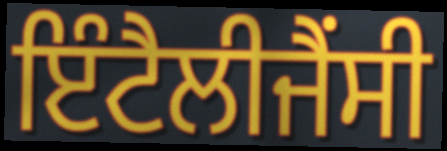
ਇੰਟੈਲੀਜੈਂਸੀ